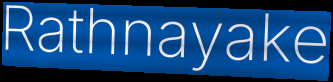
Rathnayake